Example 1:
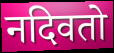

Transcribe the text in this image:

नदिवतो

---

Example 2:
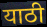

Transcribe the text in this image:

याठी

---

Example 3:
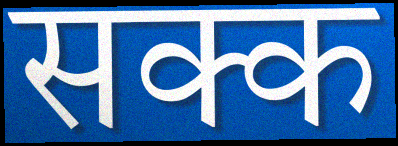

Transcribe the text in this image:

सक्क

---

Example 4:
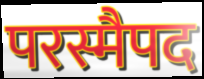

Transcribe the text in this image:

परस्मैपद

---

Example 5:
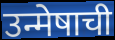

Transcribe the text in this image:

उन्मेषाची